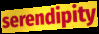
serendipity